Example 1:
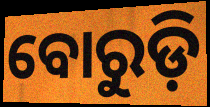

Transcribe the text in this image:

ବୋରୁଡ଼ି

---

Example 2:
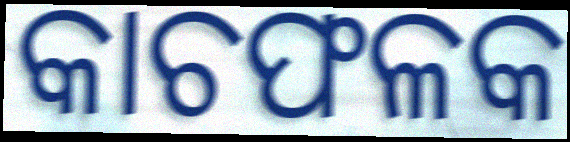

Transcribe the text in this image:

କାଚଫଳକ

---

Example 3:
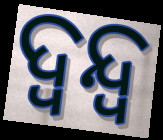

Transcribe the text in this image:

ଦ୍ବନ୍ଦ୍ବ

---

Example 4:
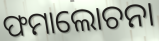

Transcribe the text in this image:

ଫମାଲୋଚନା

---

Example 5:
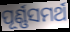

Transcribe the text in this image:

ପୂର୍ଣ୍ଣସମର୍ଥ